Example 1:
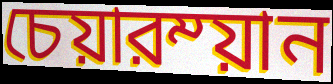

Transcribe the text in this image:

চেয়ারম্য়ান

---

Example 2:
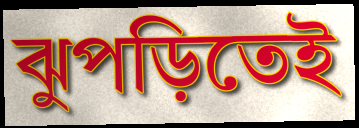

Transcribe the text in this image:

ঝুপড়িতেই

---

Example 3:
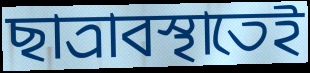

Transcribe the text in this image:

ছাত্রাবস্থাতেই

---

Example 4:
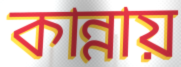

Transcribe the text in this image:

কান্নায়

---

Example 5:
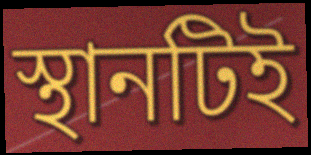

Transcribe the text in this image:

স্থানটিই